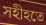
সহীহতে